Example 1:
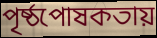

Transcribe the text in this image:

পৃষ্ঠপোষকতায়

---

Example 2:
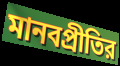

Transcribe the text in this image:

মানবপ্রীতির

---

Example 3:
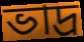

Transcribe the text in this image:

ভাদ্র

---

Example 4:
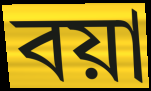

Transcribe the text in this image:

বয়া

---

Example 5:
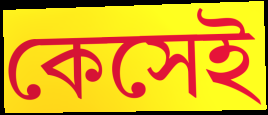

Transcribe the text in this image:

কেসেই